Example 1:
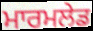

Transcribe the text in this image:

ਮਾਰਮਲੇਡ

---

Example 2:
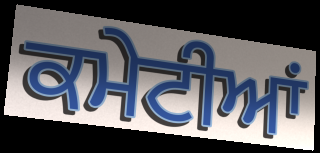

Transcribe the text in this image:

ਕਮੇਟੀਆਂ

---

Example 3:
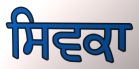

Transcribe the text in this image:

ਸਿਵਕਾ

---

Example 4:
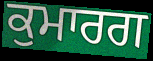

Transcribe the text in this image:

ਕੁਮਾਰਗ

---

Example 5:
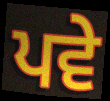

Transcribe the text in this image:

ਪਵੇ